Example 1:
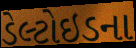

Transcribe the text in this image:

ડેલ્ટોઇડના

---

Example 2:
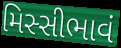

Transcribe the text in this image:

મિસ્સીભાવં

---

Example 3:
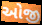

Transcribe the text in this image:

ઓજી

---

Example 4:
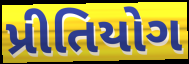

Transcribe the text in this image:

પ્રીતિયોગ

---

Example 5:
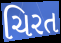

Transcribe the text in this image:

ચિરત